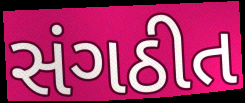
સંગઠીત